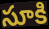
సూకి